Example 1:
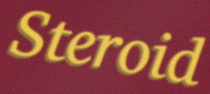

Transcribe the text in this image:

Steroid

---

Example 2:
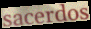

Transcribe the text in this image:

sacerdos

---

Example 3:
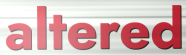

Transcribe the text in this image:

altered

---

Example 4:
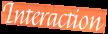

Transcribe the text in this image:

Interaction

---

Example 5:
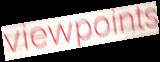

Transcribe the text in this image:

viewpoints